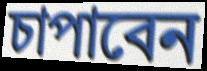
চাপাবেন